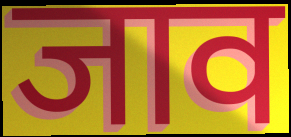
जाव